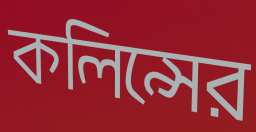
কলিন্সের